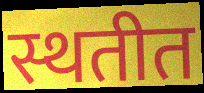
स्थतीत